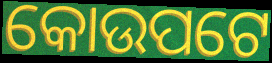
କୋଉପଟେ